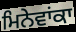
ਮਿਨੇਵਾਂਕਾ